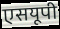
एसयूपी